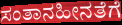
ಸಂತಾನಹೀನತೆಗೆ